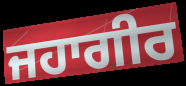
ਜਹਾਗੀਰ